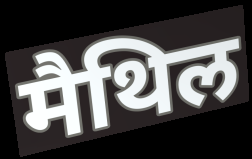
मैथिल